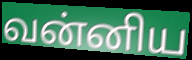
வன்னிய